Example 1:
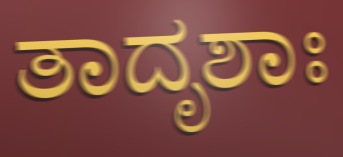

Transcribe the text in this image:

ತಾದೃಶಾಃ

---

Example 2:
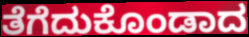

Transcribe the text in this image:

ತೆಗೆದುಕೊಂಡಾದ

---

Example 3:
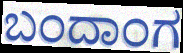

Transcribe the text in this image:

ಬಂದಾಂಗ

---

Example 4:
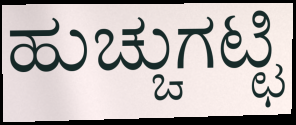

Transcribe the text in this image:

ಹುಚ್ಚುಗಟ್ಟಿ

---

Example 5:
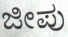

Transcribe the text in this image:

ಜೀಪು